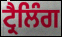
ਟ੍ਰੈਲਿੰਗ